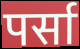
पर्सा